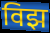
विझ